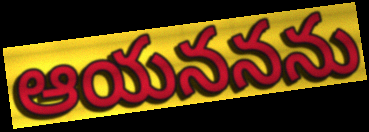
ఆయననను